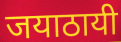
जयाठायी